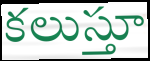
కలుస్తూ